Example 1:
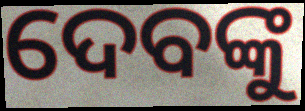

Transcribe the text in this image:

ଦେବଙ୍କୁ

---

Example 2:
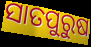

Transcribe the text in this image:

ସାତପୁରୁଷ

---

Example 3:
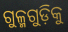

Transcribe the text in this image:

ଗୁଳ୍ମଗୁଡ଼ିକୁ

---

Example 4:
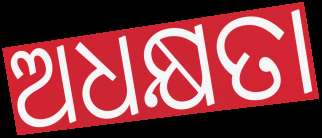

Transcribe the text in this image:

ଅଧକ୍ଷତା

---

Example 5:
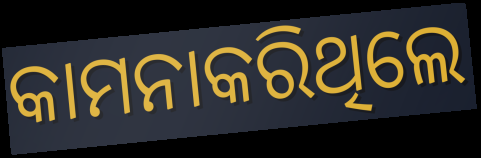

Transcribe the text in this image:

କାମନାକରିଥିଲେ